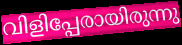
വിളിപ്പേരായിരുന്നു